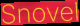
Snovel